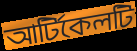
আর্টিকেলটি